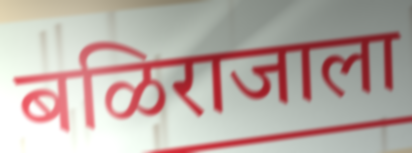
बळिराजाला